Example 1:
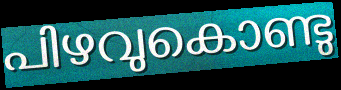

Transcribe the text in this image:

പിഴവുകൊണ്ടു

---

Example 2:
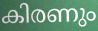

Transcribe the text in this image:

കിരണും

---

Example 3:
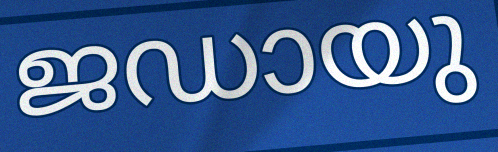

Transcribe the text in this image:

ജഡായു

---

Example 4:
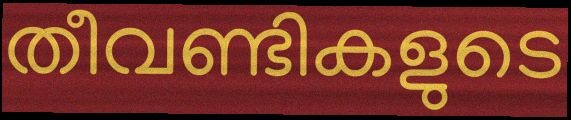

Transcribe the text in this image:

തീവണ്ടികളുടെ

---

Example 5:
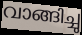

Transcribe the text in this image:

വാങ്ങിച്ചു